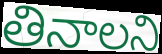
తినాలని